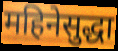
महिनेसुद्धा